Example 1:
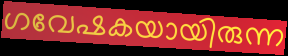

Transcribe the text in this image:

ഗവേഷകയായിരുന്ന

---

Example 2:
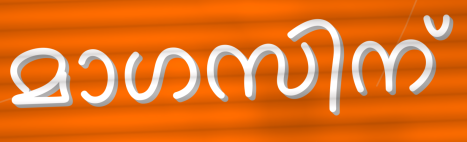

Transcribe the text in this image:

മാഗസിന്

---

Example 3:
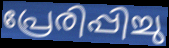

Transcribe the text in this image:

പ്രേരിപ്പിച്ചു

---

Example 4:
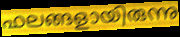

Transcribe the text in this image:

ഫലങ്ങളായിരുന്നു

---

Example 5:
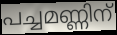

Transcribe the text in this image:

പച്ചമണ്ണിന്